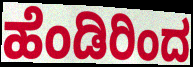
ಹೆಂಡಿರಿಂದ